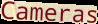
Cameras